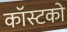
कॉस्टको